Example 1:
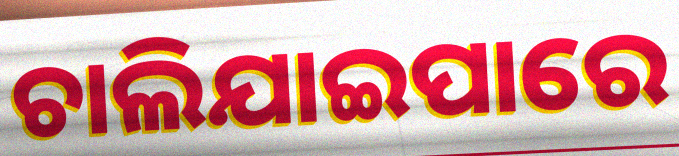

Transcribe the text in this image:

ଚାଲିଯାଇପାରେ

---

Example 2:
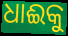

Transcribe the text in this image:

ଧାଈକୁ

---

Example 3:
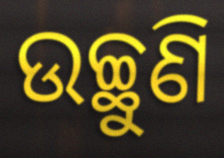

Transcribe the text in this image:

ଉଚ୍ଛୁଣି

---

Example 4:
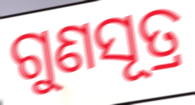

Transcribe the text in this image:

ଗୁଣସୂତ୍ର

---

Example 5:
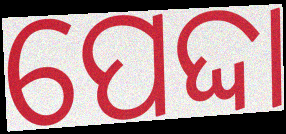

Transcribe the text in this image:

ପେଦ୍ଦା